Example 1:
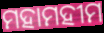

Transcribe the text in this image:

ମହାମହୀମ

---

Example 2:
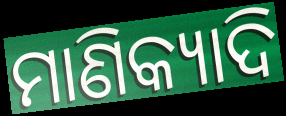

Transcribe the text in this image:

ମାଣିକ୍ୟାଦି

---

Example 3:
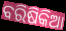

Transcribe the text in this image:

ବରିଷିକିଆ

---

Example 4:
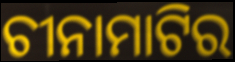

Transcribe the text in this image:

ଚୀନାମାଟିର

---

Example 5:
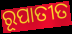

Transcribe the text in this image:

ରୂପାତୀତ